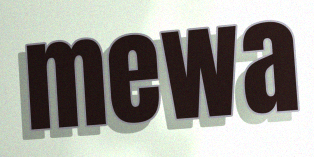
mewa